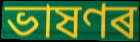
ভাষণৰ